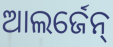
ଆଲର୍ଜେନ୍